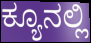
ಕ್ಯೂನಲ್ಲಿ